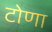
टोणा